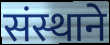
संस्थाने